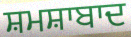
ਸ਼ਮਸ਼ਾਬਾਦ